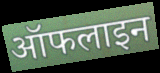
ऑफलाइन